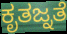
ಕೃತಜ್ನತೆ